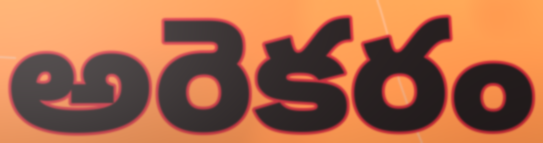
అరెకరం